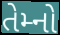
તેમ્નો